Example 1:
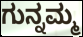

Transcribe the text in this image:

ಗುನ್ನಮ್ಮ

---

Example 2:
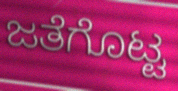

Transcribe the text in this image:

ಜತೆಗೊಟ್ಟ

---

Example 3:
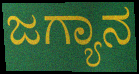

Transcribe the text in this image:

ಜಗ್ಯಾನ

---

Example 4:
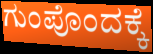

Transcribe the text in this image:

ಗುಂಪೊಂದಕ್ಕೆ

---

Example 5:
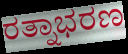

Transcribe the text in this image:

ರತ್ನಾಭರಣ